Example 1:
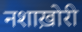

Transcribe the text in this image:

नशाख़ोरी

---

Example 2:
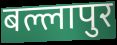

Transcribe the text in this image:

बल्लापुर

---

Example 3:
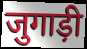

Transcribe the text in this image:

जुगाड़ी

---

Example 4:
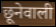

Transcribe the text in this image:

छूनेवाली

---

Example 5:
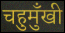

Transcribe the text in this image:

चहुमुँखी